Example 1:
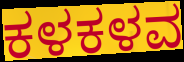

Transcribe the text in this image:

ಕಳಕಳವ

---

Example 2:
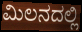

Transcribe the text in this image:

ಮಿಲನದಲ್ಲಿ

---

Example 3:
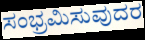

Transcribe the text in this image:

ಸಂಭ್ರಮಿಸುವುದರ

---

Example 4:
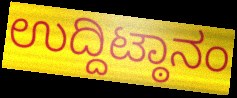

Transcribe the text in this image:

ಉದ್ದಿಟ್ಠಾನಂ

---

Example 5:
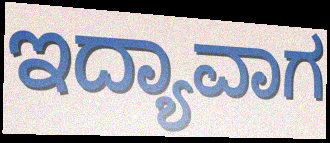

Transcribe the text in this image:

ಇದ್ಯಾವಾಗ